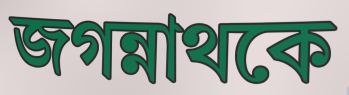
জগন্নাথকে